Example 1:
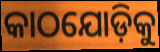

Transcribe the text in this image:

କାଠଯୋଡ଼ିକୁ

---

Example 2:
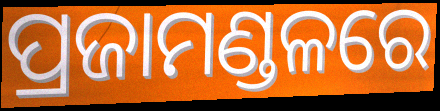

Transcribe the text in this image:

ପ୍ରଜାମଣ୍ଡଳରେ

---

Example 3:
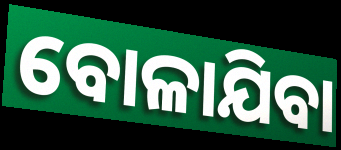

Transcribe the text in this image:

ବୋଳାଯିବା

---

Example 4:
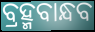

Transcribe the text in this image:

ବ୍ରହ୍ମବାନ୍ଧବ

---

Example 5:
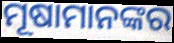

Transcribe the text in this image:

ମୂଷାମାନଙ୍କର